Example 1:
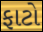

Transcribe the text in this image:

ફાટો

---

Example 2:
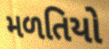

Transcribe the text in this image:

મળતિયો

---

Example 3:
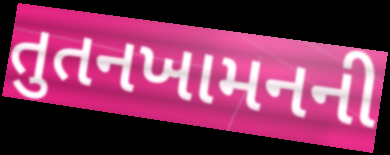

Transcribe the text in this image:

તુતનખામનની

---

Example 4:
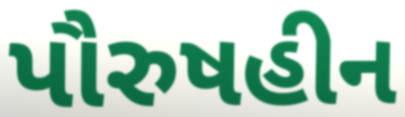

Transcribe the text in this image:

પૌરુષહીન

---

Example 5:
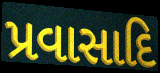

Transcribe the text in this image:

પ્રવાસાદિ